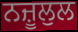
ਨਜ਼ੂਲੁਲ